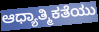
ಆಧ್ಯಾತ್ಮಿಕತೆಯು